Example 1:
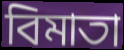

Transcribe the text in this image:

বিমাতা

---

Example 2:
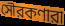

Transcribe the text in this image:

সৌরকণারা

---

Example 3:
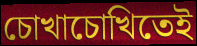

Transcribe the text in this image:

চোখাচোখিতেই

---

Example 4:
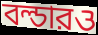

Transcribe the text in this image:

বল্ডারও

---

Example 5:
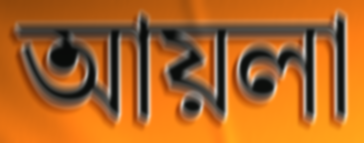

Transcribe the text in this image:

আয়লা